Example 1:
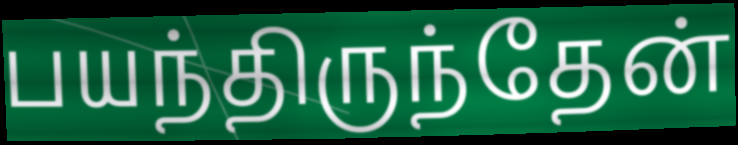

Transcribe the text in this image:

பயந்திருந்தேன்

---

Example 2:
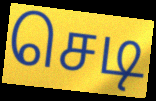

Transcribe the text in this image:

செடி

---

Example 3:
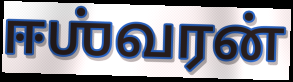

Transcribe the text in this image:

ஈஶ்வரன்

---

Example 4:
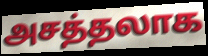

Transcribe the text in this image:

அசத்தலாக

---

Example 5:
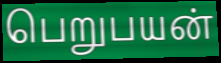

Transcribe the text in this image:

பெறுபயன்